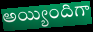
అయ్యిందిగా